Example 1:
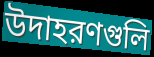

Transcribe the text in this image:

উদাহরণগুলি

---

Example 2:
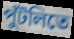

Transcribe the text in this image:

পুঁটলিতে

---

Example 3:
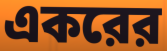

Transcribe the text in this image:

একরের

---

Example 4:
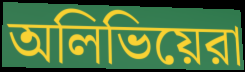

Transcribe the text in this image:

অলিভিয়েরা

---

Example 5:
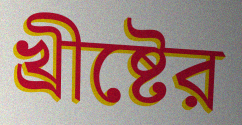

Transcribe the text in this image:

খ্রীষ্টের